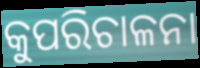
କୁପରିଚାଳନା